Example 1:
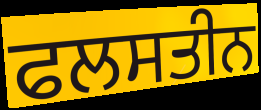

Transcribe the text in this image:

ਫਲਸਤੀਨ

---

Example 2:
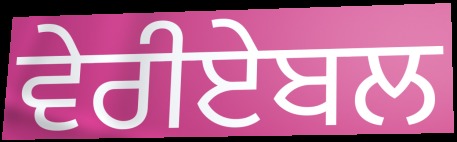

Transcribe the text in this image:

ਵੇਰੀਏਬਲ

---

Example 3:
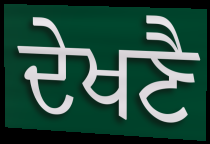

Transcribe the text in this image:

ਦੇਖਣੈ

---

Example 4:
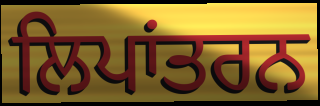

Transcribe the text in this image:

ਲਿਪਾਂਤਰਨ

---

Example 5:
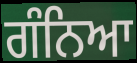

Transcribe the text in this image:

ਗੰਨਿਆ